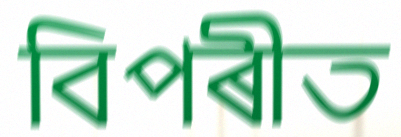
বিপৰীত